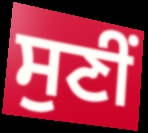
ਸੁਣੀਂ